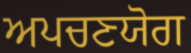
ਅਪਚਣਯੋਗ